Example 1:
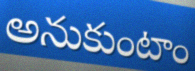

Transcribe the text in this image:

అనుకుంటాం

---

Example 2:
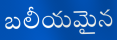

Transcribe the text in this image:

బలీయమైన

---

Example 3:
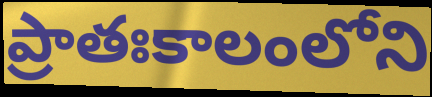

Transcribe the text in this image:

ప్రాతఃకాలంలోని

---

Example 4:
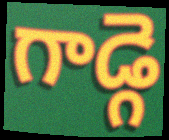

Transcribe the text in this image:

గాడ్గె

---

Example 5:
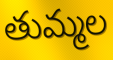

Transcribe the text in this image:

తుమ్మల